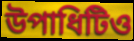
উপাধিটিও